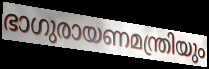
ഭാഗുരായണമന്ത്രിയും